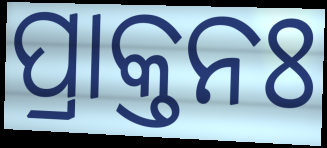
ପ୍ରାକ୍ତନଃ